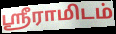
ஸ்ரீராமிடம்